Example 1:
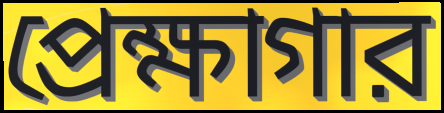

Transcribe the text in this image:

প্রেক্ষাগার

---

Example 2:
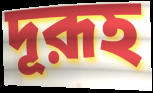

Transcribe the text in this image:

দূরূহ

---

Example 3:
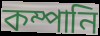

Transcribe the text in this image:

কম্পানি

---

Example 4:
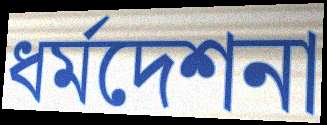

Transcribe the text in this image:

ধর্মদেশনা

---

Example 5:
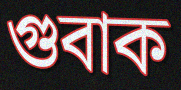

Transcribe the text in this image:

গুবাক